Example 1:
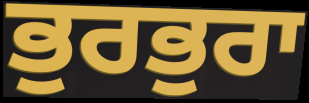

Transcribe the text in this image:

ਭੁਰਭੁਰਾ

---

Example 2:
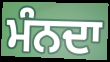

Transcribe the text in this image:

ਮੰਨਦਾ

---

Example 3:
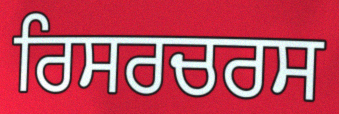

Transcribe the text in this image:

ਰਿਸਰਚਰਸ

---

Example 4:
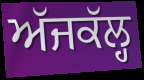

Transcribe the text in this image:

ਅੱਜਕੱਲ੍ਹ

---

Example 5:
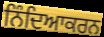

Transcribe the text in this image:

ਨਿੰਦਿਆਕਰਨ